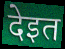
देइत